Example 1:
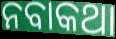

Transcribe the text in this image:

ନବାକଥା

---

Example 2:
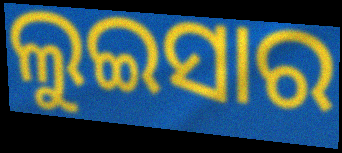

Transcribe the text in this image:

ଲୁଇସାର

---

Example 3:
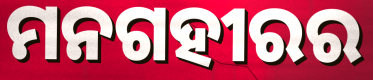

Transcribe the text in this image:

ମନଗହୀରର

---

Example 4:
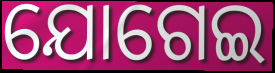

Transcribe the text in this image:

ଯୋଗେଇ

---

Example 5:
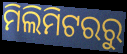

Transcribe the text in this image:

ମିଲିମିଟରରୁ